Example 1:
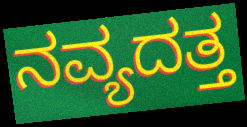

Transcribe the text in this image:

ನವ್ಯದತ್ತ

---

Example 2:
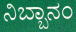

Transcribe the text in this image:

ನಿಬ್ಬಾನಂ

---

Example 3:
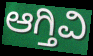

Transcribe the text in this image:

ಆಗ್ತಿವಿ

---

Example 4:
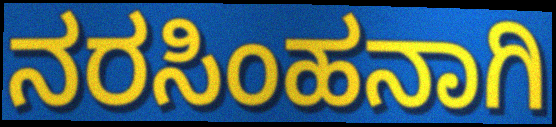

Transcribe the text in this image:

ನರಸಿಂಹನಾಗಿ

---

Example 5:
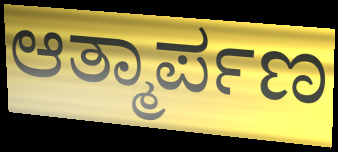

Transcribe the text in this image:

ಆತ್ಮಾರ್ಪಣ